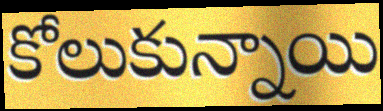
కోలుకున్నాయి